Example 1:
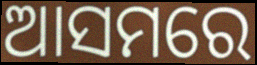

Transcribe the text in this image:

ଆସମରେ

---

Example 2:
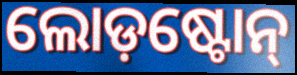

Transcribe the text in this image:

ଲୋଡ଼ଷ୍ଟୋନ୍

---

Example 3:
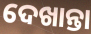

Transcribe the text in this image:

ଦେଖାନ୍ତା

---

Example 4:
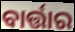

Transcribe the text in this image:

ବାର୍ତ୍ତାର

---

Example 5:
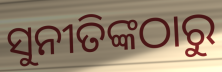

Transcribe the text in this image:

ସୁନୀତିଙ୍କଠାରୁ